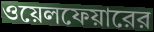
ওয়েলফেয়ারের